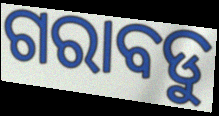
ଗରାବଡୁ